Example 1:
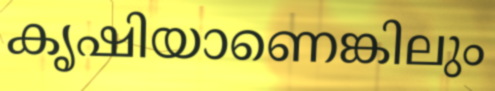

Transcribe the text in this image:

കൃഷിയാണെങ്കിലും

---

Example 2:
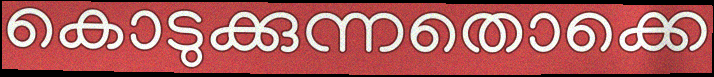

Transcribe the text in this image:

കൊടുക്കുന്നതൊക്കെ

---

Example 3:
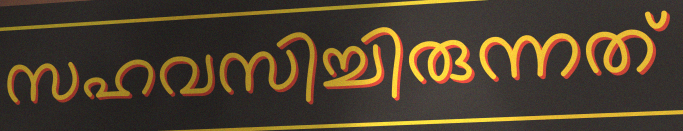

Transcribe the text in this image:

സഹവസിച്ചിരുന്നത്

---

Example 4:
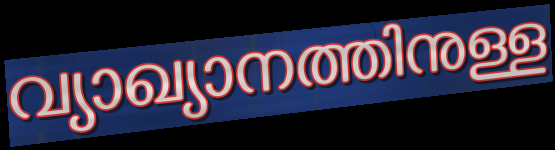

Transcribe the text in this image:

വ്യാഖ്യാനത്തിനുള്ള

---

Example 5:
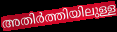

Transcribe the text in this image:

അതിർത്തിയിലുള്ള